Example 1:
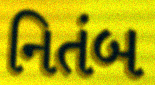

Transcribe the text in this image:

નિતંબ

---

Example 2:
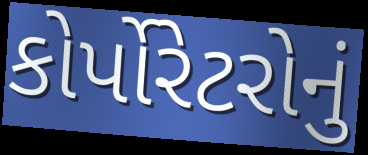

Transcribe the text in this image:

કોર્પોરેટરોનું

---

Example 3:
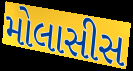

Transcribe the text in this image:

મોલાસીસ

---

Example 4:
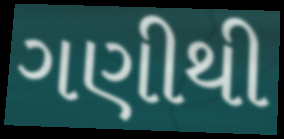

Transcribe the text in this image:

ગણીથી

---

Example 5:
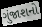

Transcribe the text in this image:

ગુંજાશનો